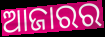
ଆଜାରର